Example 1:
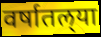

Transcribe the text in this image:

वर्षातल्या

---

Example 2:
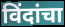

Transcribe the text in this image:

विंदांचा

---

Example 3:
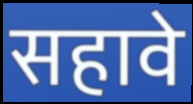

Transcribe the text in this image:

सहावे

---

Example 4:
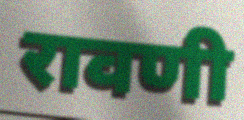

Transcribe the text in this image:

रावणी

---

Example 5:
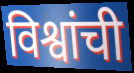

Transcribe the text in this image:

विश्वांची